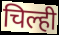
चिल्ही